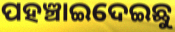
ପହଞ୍ଚାଇଦେଇଛୁ